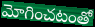
మోగించటంతో